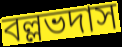
বল্লভদাস